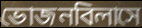
ভোজনবিলাসে